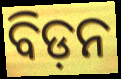
ବିଡ଼ନ